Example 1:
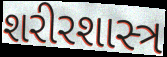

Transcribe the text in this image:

શરીરશાસ્ત્ર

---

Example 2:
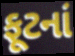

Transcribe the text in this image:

ફૂટનાં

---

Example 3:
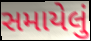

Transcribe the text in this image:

સમાયેલું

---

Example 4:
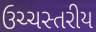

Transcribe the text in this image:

ઉચ્ચસ્તરીય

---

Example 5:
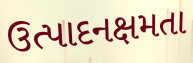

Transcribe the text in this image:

ઉત્પાદનક્ષમતા